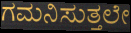
ಗಮನಿಸುತ್ತಲೇ